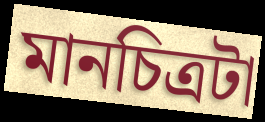
মানচিত্রটা